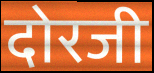
दोरजी